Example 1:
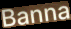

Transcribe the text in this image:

Banna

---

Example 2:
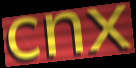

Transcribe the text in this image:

cnx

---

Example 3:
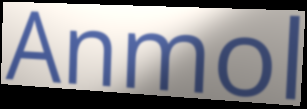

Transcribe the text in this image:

Anmol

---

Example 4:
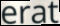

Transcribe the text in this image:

erat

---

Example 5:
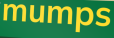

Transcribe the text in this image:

mumps